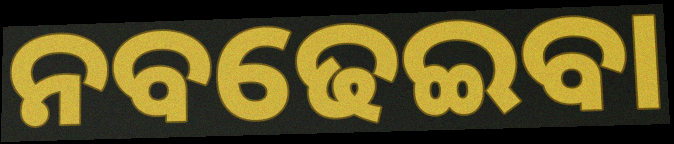
ନବଢେଇବା